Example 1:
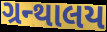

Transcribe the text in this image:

ગ્રન્થાલય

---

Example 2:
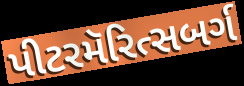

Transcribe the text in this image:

પીટરમૅરિત્સબર્ગ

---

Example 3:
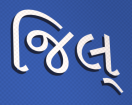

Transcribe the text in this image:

જિલ્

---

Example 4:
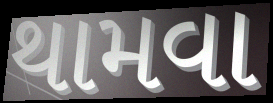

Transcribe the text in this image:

થામવા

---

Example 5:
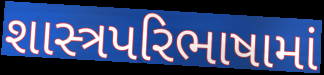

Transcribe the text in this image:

શાસ્ત્રપરિભાષામાં